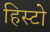
हिस्टो